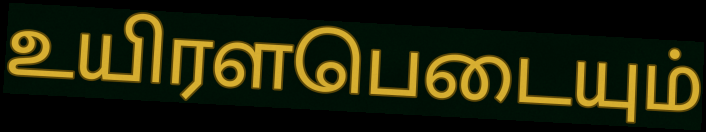
உயிரளபெடையும்